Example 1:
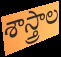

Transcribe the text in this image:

శాస్త్రాల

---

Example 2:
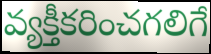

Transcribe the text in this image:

వ్యక్తీకరించగలిగే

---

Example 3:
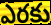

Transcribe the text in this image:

ఎరకు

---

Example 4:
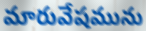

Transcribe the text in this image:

మారువేషమును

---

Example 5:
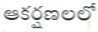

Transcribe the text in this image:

ఆకర్షణలలో